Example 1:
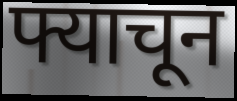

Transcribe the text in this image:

फ्याचून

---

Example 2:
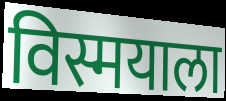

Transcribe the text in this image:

विस्मयाला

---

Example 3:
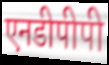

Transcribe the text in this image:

एनडीपीपी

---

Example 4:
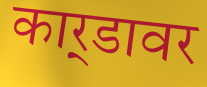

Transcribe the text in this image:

कार्डावर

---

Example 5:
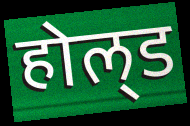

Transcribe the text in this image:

होल्ड